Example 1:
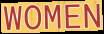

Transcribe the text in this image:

WOMEN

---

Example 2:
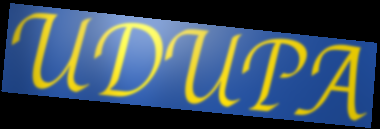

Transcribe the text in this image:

UDUPA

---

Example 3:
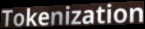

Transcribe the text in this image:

Tokenization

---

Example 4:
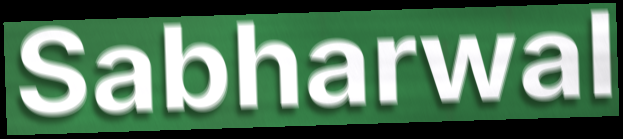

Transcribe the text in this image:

Sabharwal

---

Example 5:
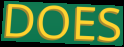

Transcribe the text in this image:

DOES